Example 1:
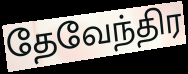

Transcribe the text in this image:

தேவேந்திர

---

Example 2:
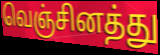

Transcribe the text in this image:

வெஞ்சினத்து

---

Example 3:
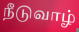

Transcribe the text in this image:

நீடுவாழ்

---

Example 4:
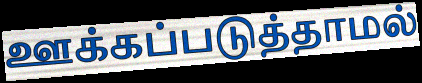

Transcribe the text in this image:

ஊக்கப்படுத்தாமல்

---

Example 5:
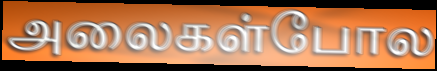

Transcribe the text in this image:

அலைகள்போல